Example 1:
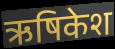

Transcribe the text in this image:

ऋषिकेश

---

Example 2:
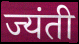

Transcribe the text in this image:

ज्यंती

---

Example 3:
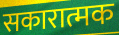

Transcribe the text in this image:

सकारात्मक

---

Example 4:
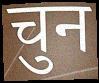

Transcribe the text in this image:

चुन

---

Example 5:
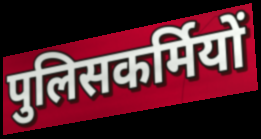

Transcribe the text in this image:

पुलिसकर्मियों